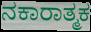
ನಕಾರಾತ್ಮಕ